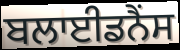
ਬਲਾਈਡਨੈਂਸ